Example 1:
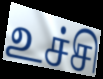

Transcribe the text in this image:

உச்சி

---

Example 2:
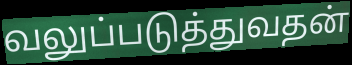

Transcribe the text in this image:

வலுப்படுத்துவதன்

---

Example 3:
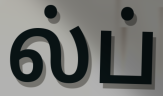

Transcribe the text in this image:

ல்ப்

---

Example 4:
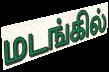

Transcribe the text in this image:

மடங்கில்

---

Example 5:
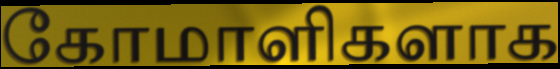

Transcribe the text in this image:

கோமாளிகளாக